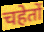
चहेतों